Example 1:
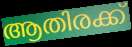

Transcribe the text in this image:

ആതിരക്ക്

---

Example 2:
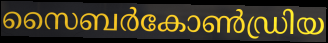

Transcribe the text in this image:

സൈബർകോൺഡ്രിയ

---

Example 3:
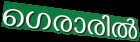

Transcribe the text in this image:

ഗെരാരിൽ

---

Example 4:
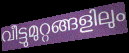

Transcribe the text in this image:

വീട്ടുമുറ്റങ്ങളിലും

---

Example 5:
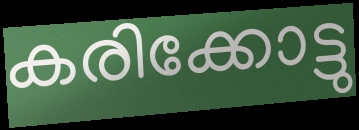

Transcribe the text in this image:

കരിക്കോട്ടു